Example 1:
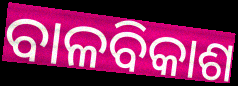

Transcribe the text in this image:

ବାଳବିକାଶ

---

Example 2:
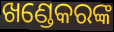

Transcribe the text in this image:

ଖଣ୍ଡେକରଙ୍କ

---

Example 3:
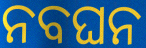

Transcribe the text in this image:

ନବଘନ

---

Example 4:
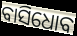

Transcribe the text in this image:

ବାସିଧୋବ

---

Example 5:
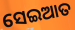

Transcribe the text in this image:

ସେଇଆତ